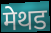
मेथड